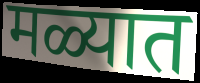
मळ्यात